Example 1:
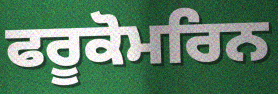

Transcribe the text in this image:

ਫਰੂਕੋਮਰਿਨ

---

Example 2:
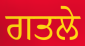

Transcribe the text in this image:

ਗਤਲੇ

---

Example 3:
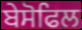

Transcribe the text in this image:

ਬੇਸੋਫਿਲ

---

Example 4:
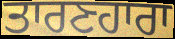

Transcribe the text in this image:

ਤਾਰਣਹਾਰਾ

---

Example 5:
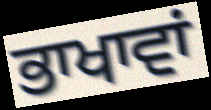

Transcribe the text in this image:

ਭਾਖਾਵਾਂ